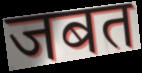
जबत